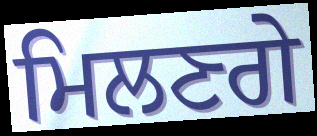
ਮਿਲਣਗੇ